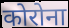
कोरोना